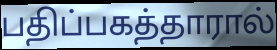
பதிப்பகத்தாரால்